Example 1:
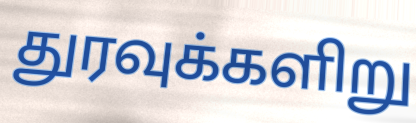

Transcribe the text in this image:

துரவுக்களிறு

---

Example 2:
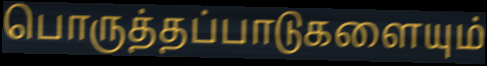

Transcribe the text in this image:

பொருத்தப்பாடுகளையும்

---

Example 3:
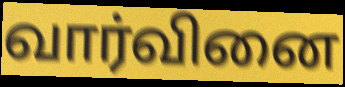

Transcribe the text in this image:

வார்வினை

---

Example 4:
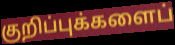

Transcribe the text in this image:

குறிப்புக்களைப்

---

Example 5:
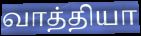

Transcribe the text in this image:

வாத்தியா